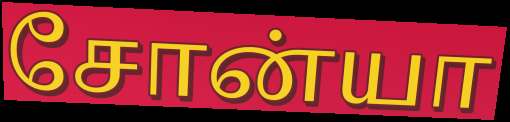
சோன்யா